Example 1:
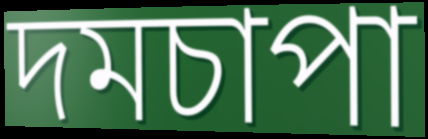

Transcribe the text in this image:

দমচাপা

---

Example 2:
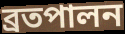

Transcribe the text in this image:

ব্রতপালন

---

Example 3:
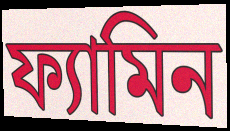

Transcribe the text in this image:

ফ্যামিন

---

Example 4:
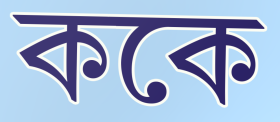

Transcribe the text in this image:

ককে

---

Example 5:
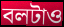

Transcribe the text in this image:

বলটাও